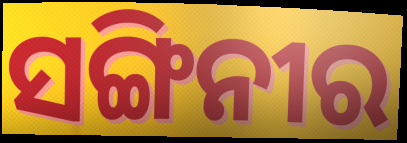
ସଙ୍ଗିନୀର